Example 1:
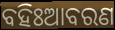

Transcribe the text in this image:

ବହିଃଆବରଣ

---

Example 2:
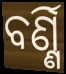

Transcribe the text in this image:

ବର୍ଣ୍ଣି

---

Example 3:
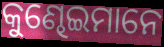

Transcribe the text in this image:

କୁଣ୍ଢେଇମାନେ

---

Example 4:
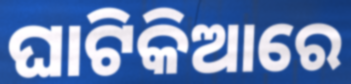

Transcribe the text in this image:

ଘାଟିକିଆରେ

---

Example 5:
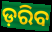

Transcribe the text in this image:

ଡ଼ରିବ